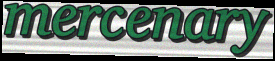
mercenary